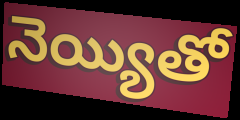
నెయ్యితో